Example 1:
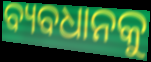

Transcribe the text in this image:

ବ୍ୟବଧାନକୁ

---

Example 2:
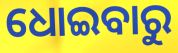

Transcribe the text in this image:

ଧୋଇବାରୁ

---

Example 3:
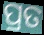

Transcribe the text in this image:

ପ୍ରତ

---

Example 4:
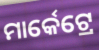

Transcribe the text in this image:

ମାର୍କେଟ୍ରେ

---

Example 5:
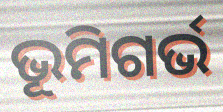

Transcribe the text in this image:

ଭୂମିଗର୍ଭ